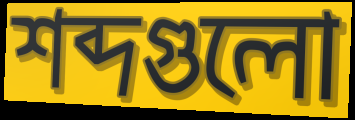
শব্দগুলো